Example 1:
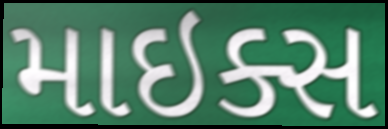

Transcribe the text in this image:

માઇક્સ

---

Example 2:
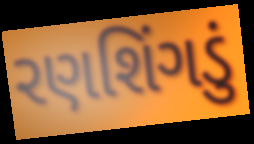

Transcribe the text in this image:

રણશિંગડું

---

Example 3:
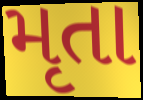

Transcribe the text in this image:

મૃતા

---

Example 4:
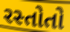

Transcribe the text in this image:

રસ્તોતો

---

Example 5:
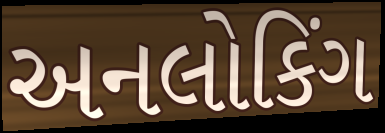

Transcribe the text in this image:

અનલોકિંગ